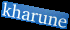
kharune